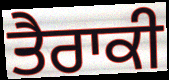
ਤੈਰਾਕੀ